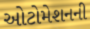
ઓટોમેશનની